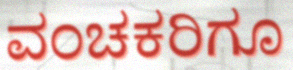
ವಂಚಕರಿಗೂ